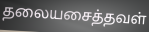
தலையசைத்தவள்